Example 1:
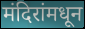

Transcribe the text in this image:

मंदिरांमधून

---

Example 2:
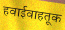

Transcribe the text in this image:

हवाईवाहतूक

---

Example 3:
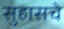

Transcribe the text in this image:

सुहासचे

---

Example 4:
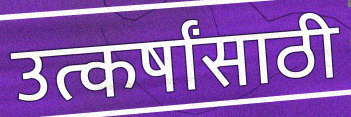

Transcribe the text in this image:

उत्कर्षांसाठी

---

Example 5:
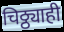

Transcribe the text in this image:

चिठ्ठ्याही